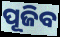
ପୂଜିବ